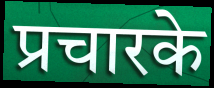
प्रचारके